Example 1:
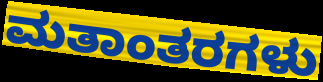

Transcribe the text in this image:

ಮತಾಂತರಗಳು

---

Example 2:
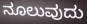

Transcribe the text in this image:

ನೂಲುವುದು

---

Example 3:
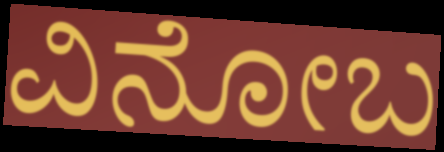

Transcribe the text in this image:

ವಿನೋಬ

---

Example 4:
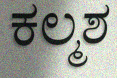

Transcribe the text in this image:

ಕಲ್ಮಶ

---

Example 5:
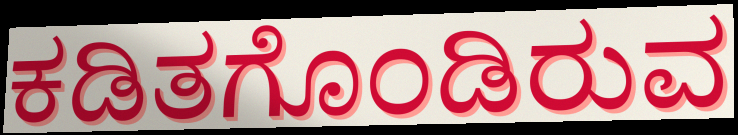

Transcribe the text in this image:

ಕಡಿತಗೊಂಡಿರುವ